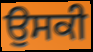
ਉਸਕੀ